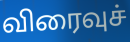
விரைவுச்